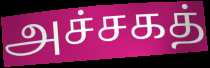
அச்சகத்